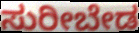
ಸುರೀಬೇಡ